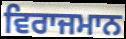
ਵਿਰਾਜਮਾਨ